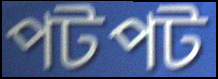
পটপট